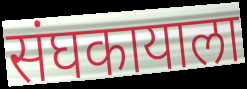
संघकायाला